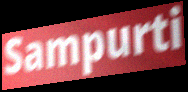
Sampurti